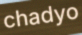
chadyo